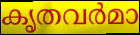
കൃതവർമാ